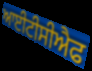
ਆਈਟੀਸੀਐਫ